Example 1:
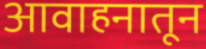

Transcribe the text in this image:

आवाहनातून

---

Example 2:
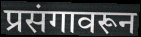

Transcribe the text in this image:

प्रसंगावरून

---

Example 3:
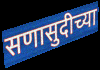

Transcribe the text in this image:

सणासुदीच्या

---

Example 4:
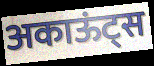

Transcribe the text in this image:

अकाऊंट्स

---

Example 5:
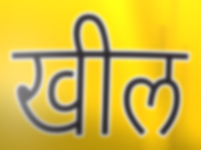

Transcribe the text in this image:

खील